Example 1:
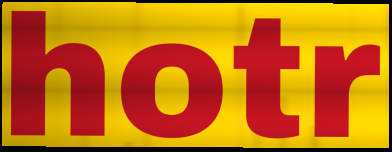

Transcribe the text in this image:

hotr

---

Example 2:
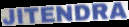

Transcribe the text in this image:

JITENDRA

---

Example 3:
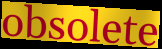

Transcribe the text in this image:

obsolete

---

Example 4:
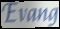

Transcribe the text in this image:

Evang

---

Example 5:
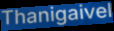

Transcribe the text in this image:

Thanigaivel